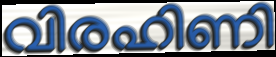
വിരഹിണി